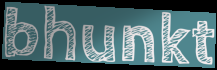
bhunkt